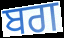
ਬਗ